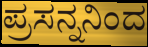
ಪ್ರಸನ್ನನಿಂದ